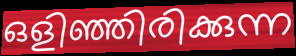
ഒളിഞ്ഞിരിക്കുന്ന